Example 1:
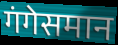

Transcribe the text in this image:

गंगेसमान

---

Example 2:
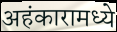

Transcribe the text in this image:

अहंकारामध्ये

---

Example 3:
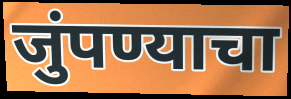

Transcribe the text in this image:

जुंपण्याचा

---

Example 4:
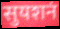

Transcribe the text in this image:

सुयशनं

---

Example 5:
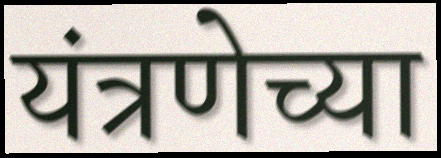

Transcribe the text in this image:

यंत्रणेच्या